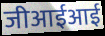
जीआईआई